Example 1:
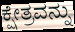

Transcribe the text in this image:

ಕ್ಷೇತ್ರವನ್ನು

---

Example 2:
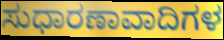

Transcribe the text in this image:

ಸುಧಾರಣಾವಾದಿಗಳ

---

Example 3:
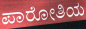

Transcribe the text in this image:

ಪಾರೋತಿಯ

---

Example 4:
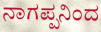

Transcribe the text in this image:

ನಾಗಪ್ಪನಿಂದ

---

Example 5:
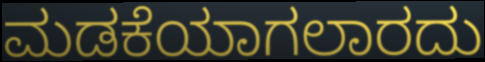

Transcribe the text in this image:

ಮಡಕೆಯಾಗಲಾರದು